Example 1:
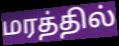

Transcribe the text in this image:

மரத்தில்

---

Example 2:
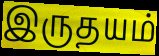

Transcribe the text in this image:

இருதயம்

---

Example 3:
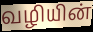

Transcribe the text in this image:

வழியின்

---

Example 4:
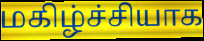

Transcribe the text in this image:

மகிழ்ச்சியாக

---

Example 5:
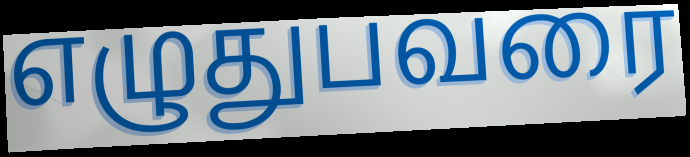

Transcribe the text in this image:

எழுதுபவரை